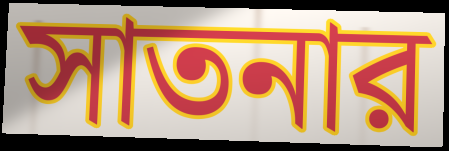
সাতনার